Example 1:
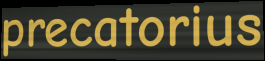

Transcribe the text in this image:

precatorius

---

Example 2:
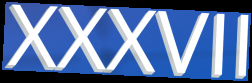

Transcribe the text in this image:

XXXVII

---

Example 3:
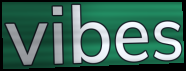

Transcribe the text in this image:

vibes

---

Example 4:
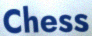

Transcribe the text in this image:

Chess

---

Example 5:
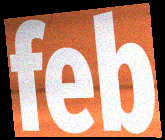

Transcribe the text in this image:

feb